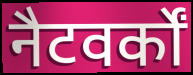
नैटवर्कों